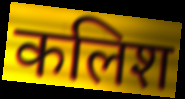
कलिश